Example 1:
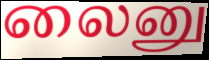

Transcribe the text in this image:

லைனு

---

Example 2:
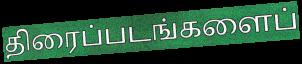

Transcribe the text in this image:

திரைப்படங்களைப்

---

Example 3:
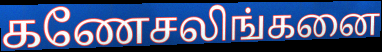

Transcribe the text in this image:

கணேசலிங்கனை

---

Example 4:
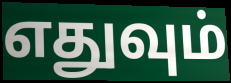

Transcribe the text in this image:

எதுவும்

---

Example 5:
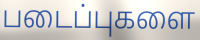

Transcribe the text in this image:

படைப்புகளை